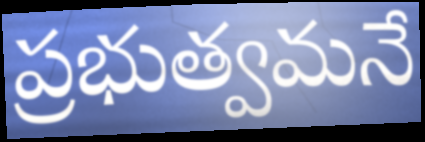
ప్రభుత్వమనే